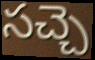
సచ్చె